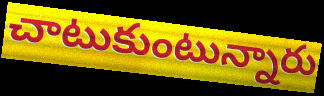
చాటుకుంటున్నారు